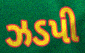
ઝડપી